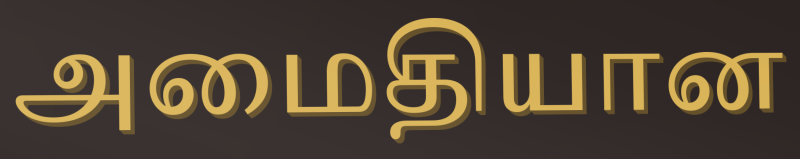
அமைதியான